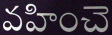
వహించె